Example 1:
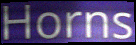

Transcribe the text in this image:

Horns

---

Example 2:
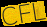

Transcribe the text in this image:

CFL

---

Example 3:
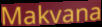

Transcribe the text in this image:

Makvana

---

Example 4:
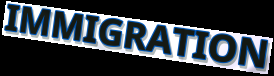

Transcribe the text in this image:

IMMIGRATION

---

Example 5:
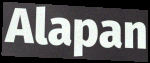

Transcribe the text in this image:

Alapan